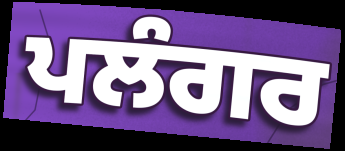
ਪਲੰਗਰ